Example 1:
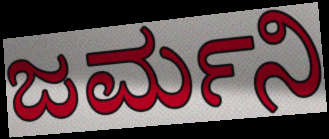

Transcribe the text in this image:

ಜರ್ಮನಿ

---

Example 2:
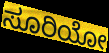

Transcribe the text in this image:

ಸೂರಿಯೋ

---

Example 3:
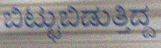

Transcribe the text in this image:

ಬಿಟ್ಟುಬಿಡುತ್ತಿದ್ದ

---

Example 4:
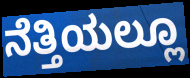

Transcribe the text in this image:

ನೆತ್ತಿಯಲ್ಲೂ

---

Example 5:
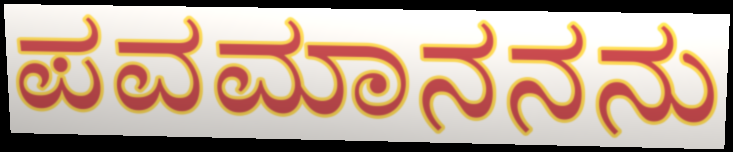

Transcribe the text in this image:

ಪವಮಾನನನು